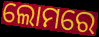
ଲୋମରେ